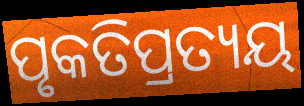
ପୃକତିପ୍ରତ୍ୟୟ